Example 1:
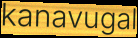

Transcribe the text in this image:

kanavugal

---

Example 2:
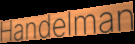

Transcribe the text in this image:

Handelman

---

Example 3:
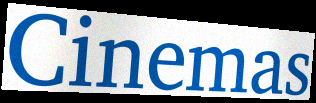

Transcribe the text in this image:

Cinemas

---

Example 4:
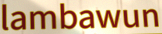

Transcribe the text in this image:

lambawun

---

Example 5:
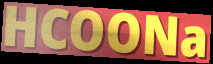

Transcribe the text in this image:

HCOONa